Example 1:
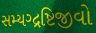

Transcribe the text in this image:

સમ્યગ્દ્રષ્ટિજીવો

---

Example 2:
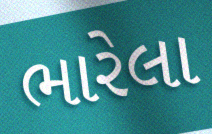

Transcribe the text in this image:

ભારેલા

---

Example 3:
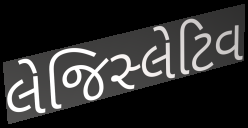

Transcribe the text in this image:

લેજિસ્લેટિવ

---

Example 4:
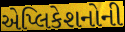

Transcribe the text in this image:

એપ્લિકેશનોની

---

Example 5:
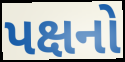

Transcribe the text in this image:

પક્ષનો